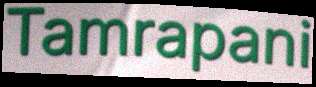
Tamrapani